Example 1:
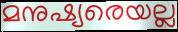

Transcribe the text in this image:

മനുഷ്യരെയല്ല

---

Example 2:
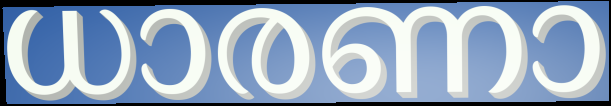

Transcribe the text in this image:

ധാരണാ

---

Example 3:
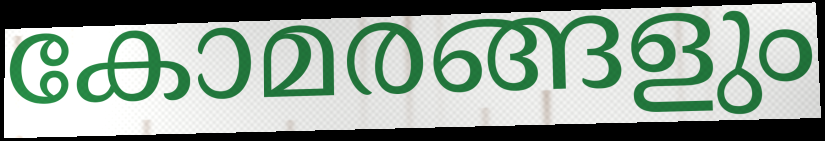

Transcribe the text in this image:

കോമരങ്ങളും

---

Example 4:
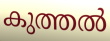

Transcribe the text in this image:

കുത്തൽ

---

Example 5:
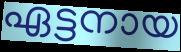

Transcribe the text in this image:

ഏട്ടനായ